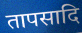
तापसादि